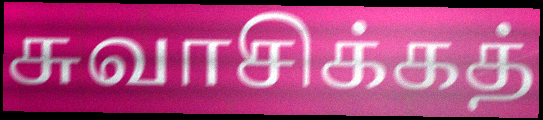
சுவாசிக்கத்